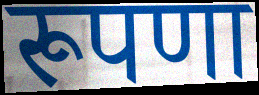
रूपणा